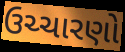
ઉચ્ચારણો